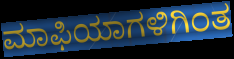
ಮಾಫಿಯಾಗಳಿಗಿಂತ